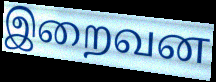
இறைவன